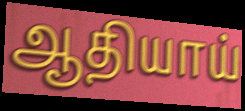
ஆதியாய்